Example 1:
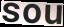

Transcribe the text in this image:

sou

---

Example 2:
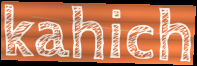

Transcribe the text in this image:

kahich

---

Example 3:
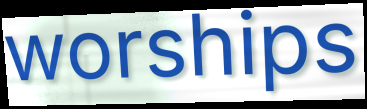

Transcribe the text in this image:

worships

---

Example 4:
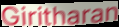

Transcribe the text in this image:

Giritharan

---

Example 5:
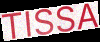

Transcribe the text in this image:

TISSA